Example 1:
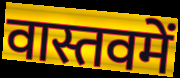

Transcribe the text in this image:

वास्तवमें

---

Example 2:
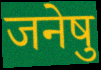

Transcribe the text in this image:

जनेषु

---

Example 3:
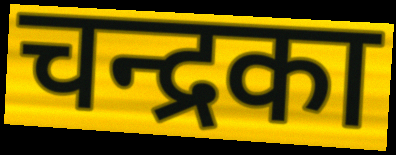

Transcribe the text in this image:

चन्द्रका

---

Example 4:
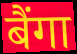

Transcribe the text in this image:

बैंगा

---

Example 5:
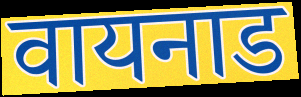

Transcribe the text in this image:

वायनाड